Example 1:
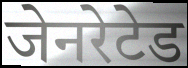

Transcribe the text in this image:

जेनरेटेड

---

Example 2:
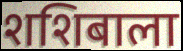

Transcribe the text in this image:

शशिबाला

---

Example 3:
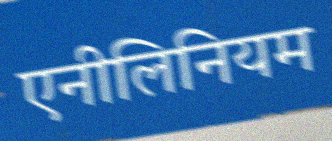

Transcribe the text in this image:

एनीलिनियम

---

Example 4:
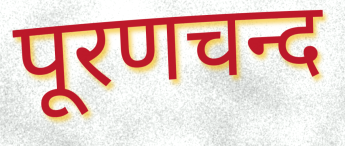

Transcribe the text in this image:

पूरणचन्द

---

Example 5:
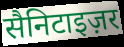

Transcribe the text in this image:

सैनिटाइज़र